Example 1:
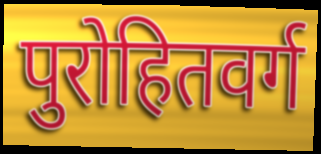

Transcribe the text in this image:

पुरोहितवर्ग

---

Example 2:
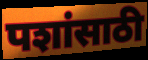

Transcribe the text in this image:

पशांसाठी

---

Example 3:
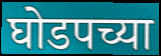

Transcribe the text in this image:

घोडपच्या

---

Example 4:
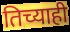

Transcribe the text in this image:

तिच्याही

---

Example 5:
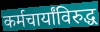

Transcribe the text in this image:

कर्मचार्यांविरुद्ध